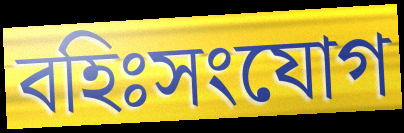
বহিঃসংযোগ